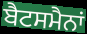
ਬੈਟਸਮੈਨਾਂ